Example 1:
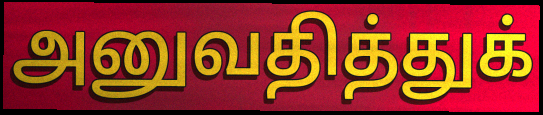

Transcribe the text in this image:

அனுவதித்துக்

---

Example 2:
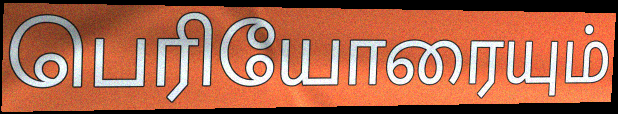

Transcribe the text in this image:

பெரியோரையும்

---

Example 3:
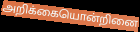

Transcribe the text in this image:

அறிக்கையொன்றினை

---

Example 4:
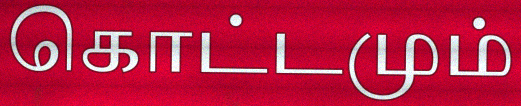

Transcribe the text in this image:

கொட்டமும்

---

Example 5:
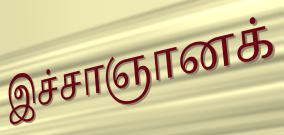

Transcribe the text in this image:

இச்சாஞானக்